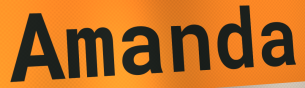
Amanda